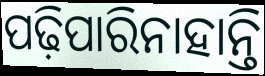
ପଢ଼ିପାରିନାହାନ୍ତି